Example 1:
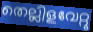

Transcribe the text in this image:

തെല്ലിളവേറ്റു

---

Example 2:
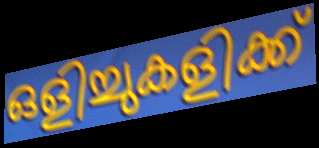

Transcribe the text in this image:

ഒളിച്ചുകളിക്ക്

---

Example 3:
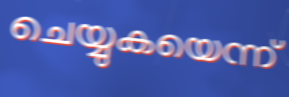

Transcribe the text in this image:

ചെയ്യുകയെന്ന്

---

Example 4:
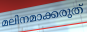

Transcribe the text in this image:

മലിനമാക്കരുത്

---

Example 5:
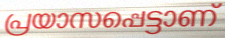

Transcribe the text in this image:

പ്രയാസപ്പെട്ടാണ്